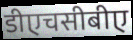
डीएचसीबीए